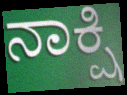
ನಾಕ್ಷಿ